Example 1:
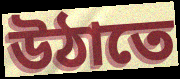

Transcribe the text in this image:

উঠাতে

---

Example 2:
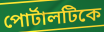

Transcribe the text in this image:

পোর্টালটিকে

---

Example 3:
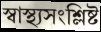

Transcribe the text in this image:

স্বাস্থ্যসংশ্লিষ্ট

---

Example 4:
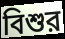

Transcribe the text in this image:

বিশুর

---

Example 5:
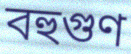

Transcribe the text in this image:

বহুগুণ